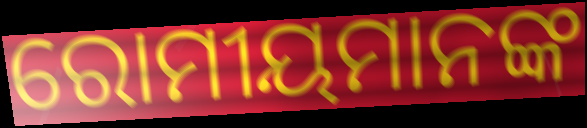
ରୋମୀୟମାନଙ୍କ